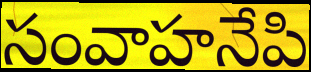
సంవాహనేపి